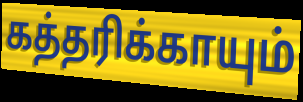
கத்தரிக்காயும்